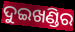
ଦୁଇଖଣ୍ଡିର